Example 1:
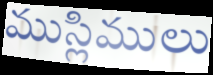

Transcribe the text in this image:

ముస్లిములు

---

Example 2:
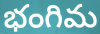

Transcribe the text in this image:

భంగిమ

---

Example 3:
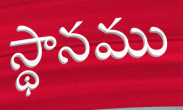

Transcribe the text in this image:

స్థానము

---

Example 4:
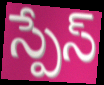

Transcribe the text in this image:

స్పేస్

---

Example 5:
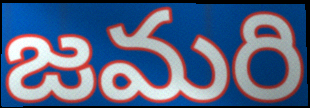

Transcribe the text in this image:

జమరి